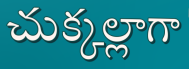
చుక్కల్లాగా